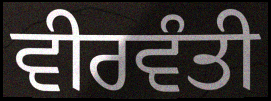
ਵੀਰਵੰਤੀ